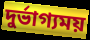
দুর্ভাগ্যময়